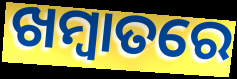
ଖମ୍ବାତରେ